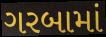
ગરબામાં